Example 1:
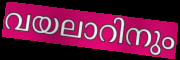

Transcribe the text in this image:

വയലാറിനും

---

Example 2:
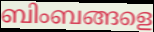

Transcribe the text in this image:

ബിംബങ്ങളെ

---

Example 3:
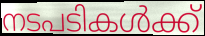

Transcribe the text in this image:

നടപടികൾക്ക്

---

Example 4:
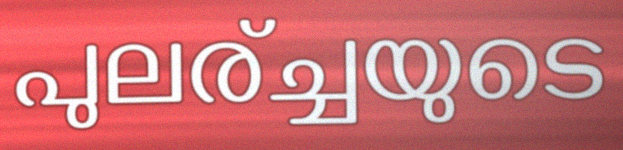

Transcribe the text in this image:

പുലര്ച്ചയുടെ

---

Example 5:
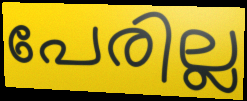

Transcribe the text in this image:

പേരില്ല